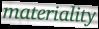
materiality